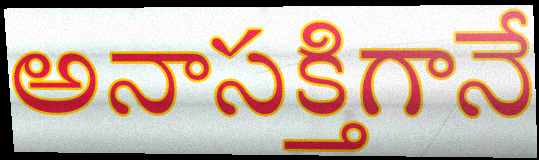
అనాసక్తిగానే